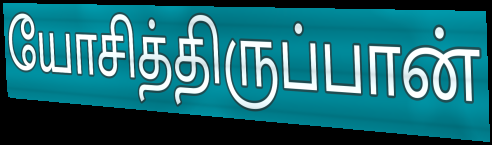
யோசித்திருப்பான்